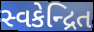
સ્વકેન્દ્રિત